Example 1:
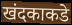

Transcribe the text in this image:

खंदकाकडे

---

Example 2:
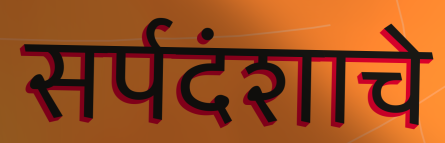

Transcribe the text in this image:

सर्पदंशाचे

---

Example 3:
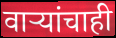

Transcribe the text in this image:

वाऱ्यांचाही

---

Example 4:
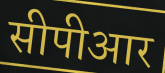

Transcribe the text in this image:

सीपीआर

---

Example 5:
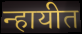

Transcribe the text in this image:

न्हायीत